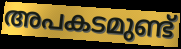
അപകടമുണ്ട്